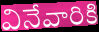
వినేవారికి